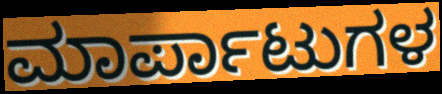
ಮಾರ್ಪಾಟುಗಳ